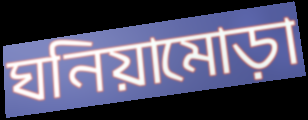
ঘনিয়ামোড়া